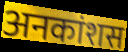
अनकांशस